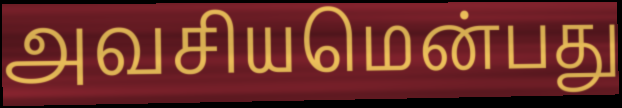
அவசியமென்பது